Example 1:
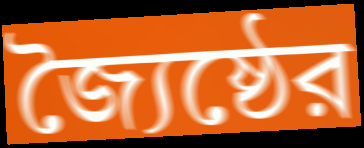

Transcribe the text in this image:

জ্যৈষ্ঠের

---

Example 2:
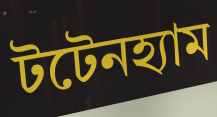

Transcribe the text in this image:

টটেনহ্যাম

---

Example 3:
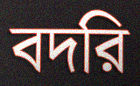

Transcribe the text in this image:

বদরি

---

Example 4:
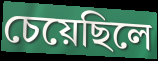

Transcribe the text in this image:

চেয়েছিলে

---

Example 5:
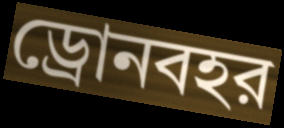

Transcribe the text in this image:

ড্রোনবহর